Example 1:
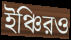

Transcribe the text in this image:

ইঞ্চিরও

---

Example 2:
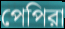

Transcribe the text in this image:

পেপিরা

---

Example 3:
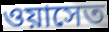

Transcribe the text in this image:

ওয়াসেত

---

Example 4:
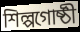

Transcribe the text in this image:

শিল্পগোষ্ঠী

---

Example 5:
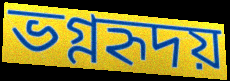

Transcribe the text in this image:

ভগ্নহৃদয়